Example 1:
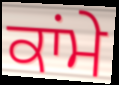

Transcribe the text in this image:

ਕਾਂਮੇ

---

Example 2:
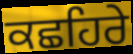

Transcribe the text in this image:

ਕਛਹਿਰੇ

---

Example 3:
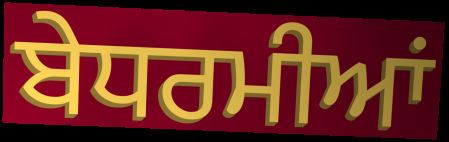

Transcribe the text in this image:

ਬੇਧਰਮੀਆਂ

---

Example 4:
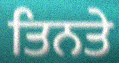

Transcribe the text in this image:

ਤਿਨਤੇ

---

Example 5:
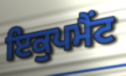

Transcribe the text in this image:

ਇਕੁਪਮੈਂਟ